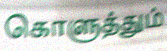
கொளுத்தும்